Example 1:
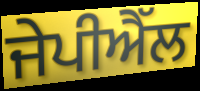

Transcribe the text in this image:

ਜੇਪੀਐੱਲ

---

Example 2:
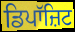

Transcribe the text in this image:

ਡਿਪਾੱਜ਼ਿਟ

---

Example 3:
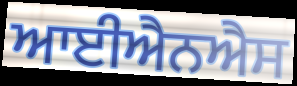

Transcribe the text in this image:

ਆਈਐਨਐਸ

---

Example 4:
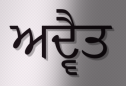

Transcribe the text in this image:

ਅਦ੍ਵੈਤ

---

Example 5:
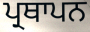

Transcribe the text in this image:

ਪ੍ਰਥਾਪਨ